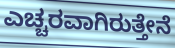
ಎಚ್ಚರವಾಗಿರುತ್ತೇನೆ